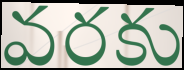
వరకు